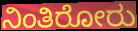
ನಿಂತಿರೋರು